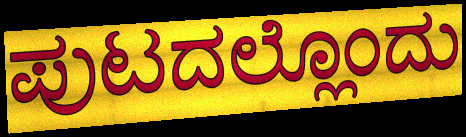
ಪುಟದಲ್ಲೊಂದು